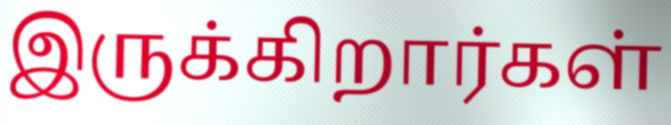
இருக்கிறார்கள்